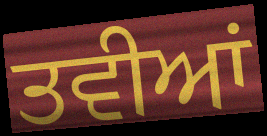
ਤਵੀਆਂ